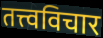
तत्त्वविचार